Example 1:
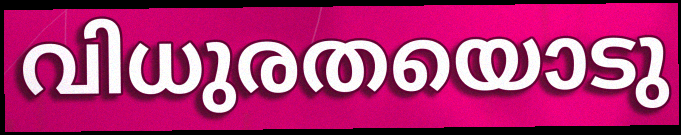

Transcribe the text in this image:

വിധുരതയൊടു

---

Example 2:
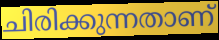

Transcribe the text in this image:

ചിരിക്കുന്നതാണ്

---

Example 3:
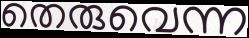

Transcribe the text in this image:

തെരുവെന്ന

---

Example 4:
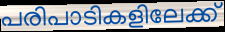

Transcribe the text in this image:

പരിപാടികളിലേക്ക്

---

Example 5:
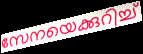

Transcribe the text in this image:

സേനയെക്കുറിച്ച്